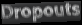
Dropouts